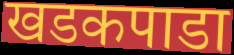
खडकपाडा